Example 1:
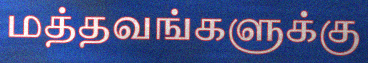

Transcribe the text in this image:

மத்தவங்களுக்கு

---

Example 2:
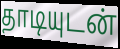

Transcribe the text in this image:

தாடியுடன்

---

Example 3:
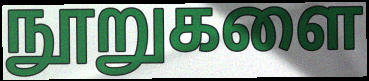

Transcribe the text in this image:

நூறுகளை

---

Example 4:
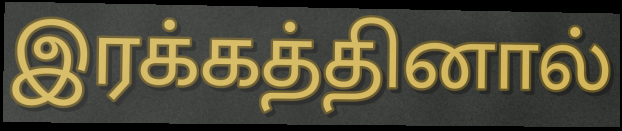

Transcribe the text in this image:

இரக்கத்தினால்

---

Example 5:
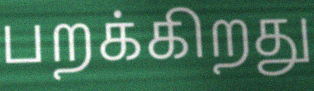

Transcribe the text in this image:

பறக்கிறது